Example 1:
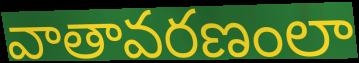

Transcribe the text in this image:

వాతావరణంలా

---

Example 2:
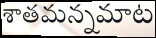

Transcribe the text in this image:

శాతమన్నమాట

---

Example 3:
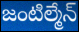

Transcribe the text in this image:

జంటిల్మేన్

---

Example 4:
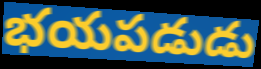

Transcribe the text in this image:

భయపడుడు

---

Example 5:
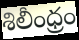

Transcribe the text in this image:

శిలీంధ్రం